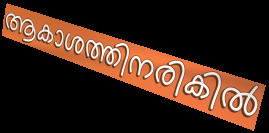
ആകാശത്തിനരികിൽ